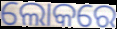
ଲୋକରେ